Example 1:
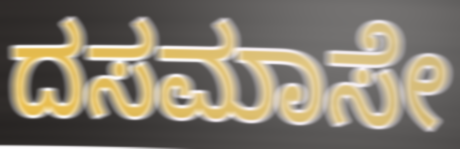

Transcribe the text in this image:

ದಸಮಾಸೇ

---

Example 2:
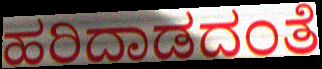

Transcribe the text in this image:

ಹರಿದಾಡದಂತೆ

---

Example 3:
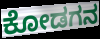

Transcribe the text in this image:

ಕೋಡಗನ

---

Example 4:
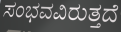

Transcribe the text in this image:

ಸಂಭವವಿರುತ್ತದೆ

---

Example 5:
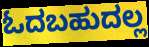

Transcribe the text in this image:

ಓದಬಹುದಲ್ಲ